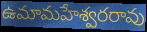
ఉమామహేశ్వరరావు